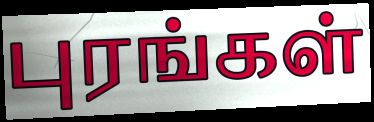
புரங்கள்